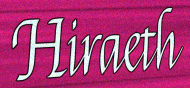
Hiraeth